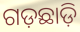
ଗଡ଼ଛାଡ଼ି